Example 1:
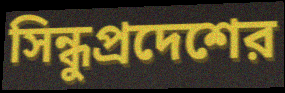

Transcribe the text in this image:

সিন্ধুপ্রদেশের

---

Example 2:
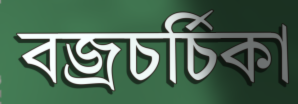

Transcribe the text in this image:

বজ্রচর্চিকা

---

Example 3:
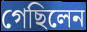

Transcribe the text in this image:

গেছিলেন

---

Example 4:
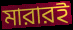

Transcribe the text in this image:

মারারই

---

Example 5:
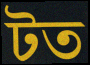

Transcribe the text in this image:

টত